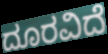
ದೂರವಿದೆ